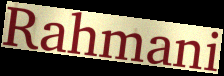
Rahmani